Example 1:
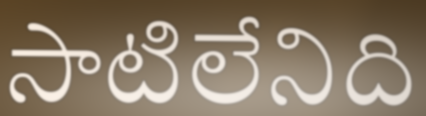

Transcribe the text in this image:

సాటిలేనిది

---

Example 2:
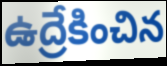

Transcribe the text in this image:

ఉద్రేకించిన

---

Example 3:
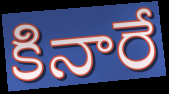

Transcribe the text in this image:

కినారే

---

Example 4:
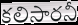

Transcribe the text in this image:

కలిసారనీ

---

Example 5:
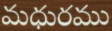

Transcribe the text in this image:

మధురము